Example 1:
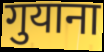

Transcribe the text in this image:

गुयाना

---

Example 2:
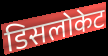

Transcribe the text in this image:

डिसलोकेट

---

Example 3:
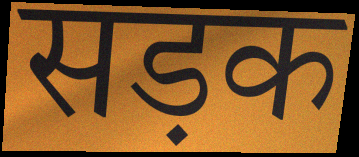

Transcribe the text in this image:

सड़क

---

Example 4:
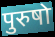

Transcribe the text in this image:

पुरुषो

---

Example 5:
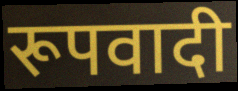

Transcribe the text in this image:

रूपवादी